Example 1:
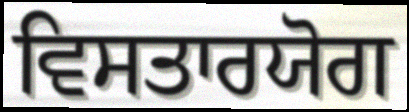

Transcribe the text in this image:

ਵਿਸਤਾਰਯੋਗ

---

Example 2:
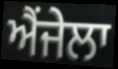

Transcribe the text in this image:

ਐਂਜੇਲਾ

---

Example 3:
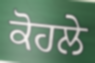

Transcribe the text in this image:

ਕੋਹਲੇ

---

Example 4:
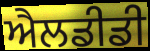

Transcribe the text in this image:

ਐਲਡੀਡੀ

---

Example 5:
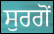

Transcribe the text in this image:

ਸੁਰਗੋਂ